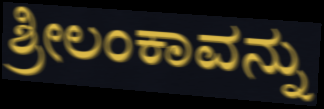
ಶ್ರೀಲಂಕಾವನ್ನು